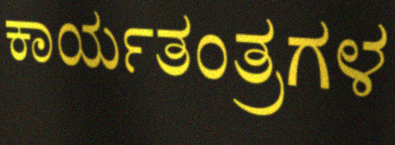
ಕಾರ್ಯತಂತ್ರಗಳ